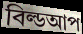
বিল্ডআপ